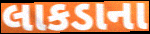
લાકડાના